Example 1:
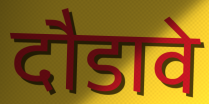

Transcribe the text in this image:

दौडावे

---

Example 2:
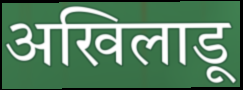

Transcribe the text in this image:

अखिलाडू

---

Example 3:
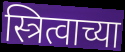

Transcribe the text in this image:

स्त्रित्वाच्या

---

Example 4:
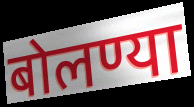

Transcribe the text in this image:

बोलण्या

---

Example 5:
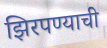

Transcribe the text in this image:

झिरपण्याची